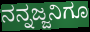
ನನ್ನಜ್ಜನಿಗೂ